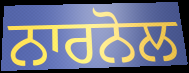
ਨਾਰਨੋਲ